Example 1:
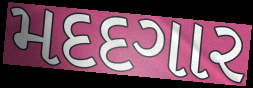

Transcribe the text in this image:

મદદગાર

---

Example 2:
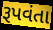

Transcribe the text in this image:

રૂપવંતા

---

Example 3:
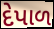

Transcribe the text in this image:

દેપાળ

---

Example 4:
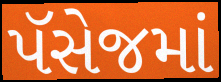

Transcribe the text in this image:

પૅસેજમાં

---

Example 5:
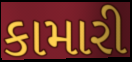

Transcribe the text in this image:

કામારી